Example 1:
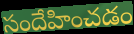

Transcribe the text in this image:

సందేహించడం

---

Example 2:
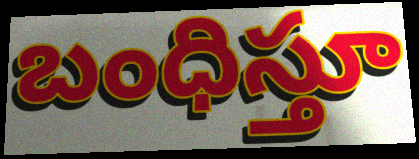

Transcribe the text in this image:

బంధిస్తూ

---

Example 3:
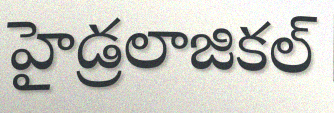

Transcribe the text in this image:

హైడ్రలాజికల్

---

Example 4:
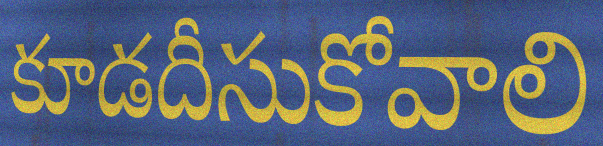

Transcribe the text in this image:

కూడదీసుకోవాలి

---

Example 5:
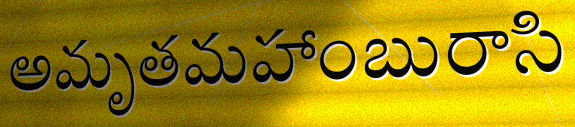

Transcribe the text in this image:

అమృతమహాంబురాసి